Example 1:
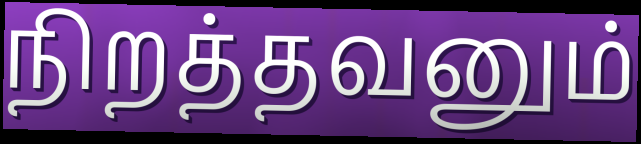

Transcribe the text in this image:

நிறத்தவனும்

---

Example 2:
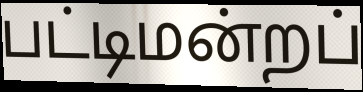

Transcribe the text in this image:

பட்டிமன்றப்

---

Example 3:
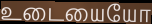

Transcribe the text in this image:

உடையையோ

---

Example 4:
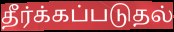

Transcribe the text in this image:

தீர்க்கப்படுதல்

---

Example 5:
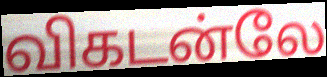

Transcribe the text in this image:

விகடன்லே